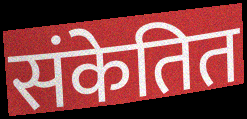
संकेतित